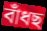
বাঁধছ